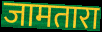
जामतारा